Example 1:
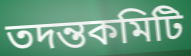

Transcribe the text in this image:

তদন্তকমিটি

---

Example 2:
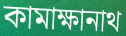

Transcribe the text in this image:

কামাক্ষানাথ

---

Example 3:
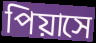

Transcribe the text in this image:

পিয়াসে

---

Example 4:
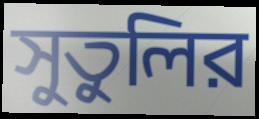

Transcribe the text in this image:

সুতুলির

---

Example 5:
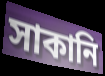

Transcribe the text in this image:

সাকানি